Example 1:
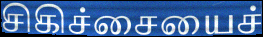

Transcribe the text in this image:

சிகிச்சையைச்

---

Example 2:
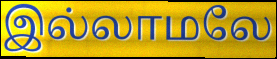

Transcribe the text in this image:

இல்லாமலே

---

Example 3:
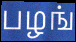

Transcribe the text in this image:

பழங்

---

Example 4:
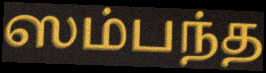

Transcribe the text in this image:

ஸம்பந்த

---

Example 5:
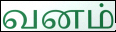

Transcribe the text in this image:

வனம்